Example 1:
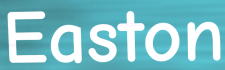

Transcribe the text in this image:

Easton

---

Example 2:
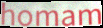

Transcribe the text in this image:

homam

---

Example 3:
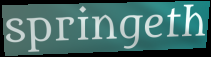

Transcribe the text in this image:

springeth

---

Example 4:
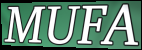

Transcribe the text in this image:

MUFA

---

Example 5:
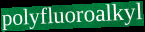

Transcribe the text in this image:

polyfluoroalkyl